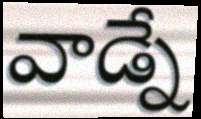
వాడ్నే